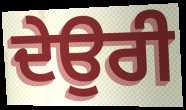
ਦੇਉਰੀ